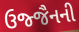
ઉજ્જૈનની